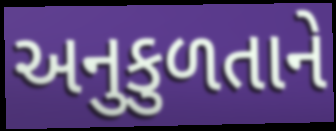
અનુકુળતાને